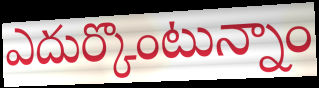
ఎదుర్కొంటున్నాం